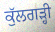
ਕੁੱਲਗੜ੍ਹੀ